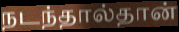
நடந்தால்தான்